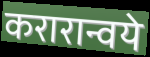
करारान्वये